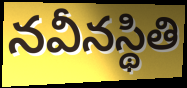
నవీనస్థితి